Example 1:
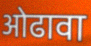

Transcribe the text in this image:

ओढावा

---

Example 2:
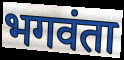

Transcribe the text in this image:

भगवंता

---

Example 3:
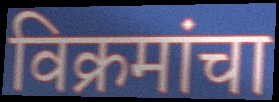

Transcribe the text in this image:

विक्रमांचा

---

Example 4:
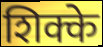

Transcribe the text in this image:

शिक्के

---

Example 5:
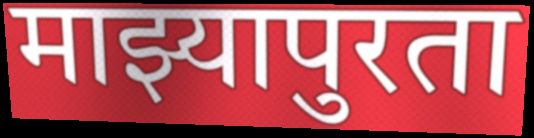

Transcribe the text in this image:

माझ्यापुरता